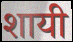
शायी